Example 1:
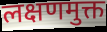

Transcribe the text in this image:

लक्षणमुक्त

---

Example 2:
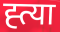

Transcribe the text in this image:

ह्त्या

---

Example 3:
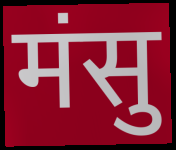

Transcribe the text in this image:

मंसु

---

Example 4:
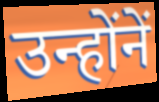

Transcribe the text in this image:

उन्होंनें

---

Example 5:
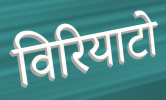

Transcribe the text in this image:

विरियाटो